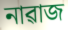
নাৱাজ